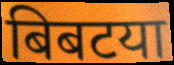
बिबटया